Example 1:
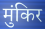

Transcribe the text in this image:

मुंकिर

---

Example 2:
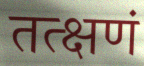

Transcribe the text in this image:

तत्क्षणं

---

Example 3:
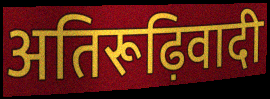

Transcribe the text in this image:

अतिरूढ़िवादी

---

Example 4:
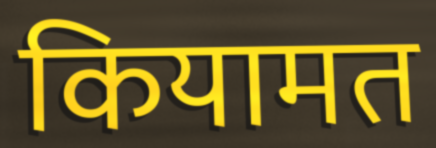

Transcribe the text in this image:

कियामत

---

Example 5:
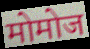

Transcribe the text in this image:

मोमोज